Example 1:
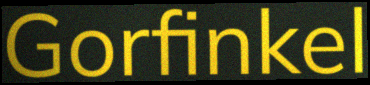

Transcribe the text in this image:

Gorfinkel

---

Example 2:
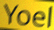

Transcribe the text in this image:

Yoel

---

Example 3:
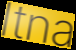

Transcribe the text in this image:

Itna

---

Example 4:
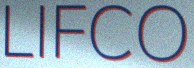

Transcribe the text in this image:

LIFCO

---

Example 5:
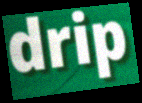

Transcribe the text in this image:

drip